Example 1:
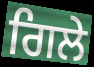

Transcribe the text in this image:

ਗਿਲੇ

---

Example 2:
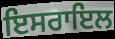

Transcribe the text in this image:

ਇਸਰਾਇਲ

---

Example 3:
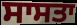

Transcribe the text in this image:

ਸਾਸਤਾ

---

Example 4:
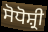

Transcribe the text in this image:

ਸੋਧੋਸ਼੍ਰੀ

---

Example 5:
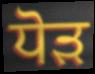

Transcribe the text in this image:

ਧੋੜ